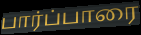
பார்ப்பாரை